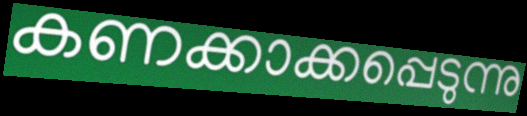
കണക്കാക്കപ്പെടുന്നു